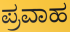
ಪ್ರವಾಹ